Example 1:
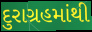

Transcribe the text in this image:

દુરાગ્રહમાંથી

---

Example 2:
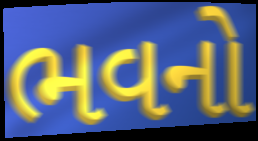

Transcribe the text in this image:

ભવનો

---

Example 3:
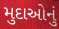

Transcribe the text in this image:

મુદાઓનું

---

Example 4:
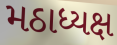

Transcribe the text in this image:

મઠાધ્યક્ષ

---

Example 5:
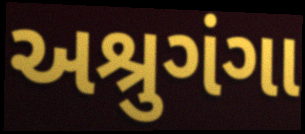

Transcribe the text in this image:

અશ્રુગંગા